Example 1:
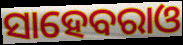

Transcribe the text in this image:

ସାହେବରାଓ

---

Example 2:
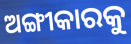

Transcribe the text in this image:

ଅଙ୍ଗୀକାରକୁ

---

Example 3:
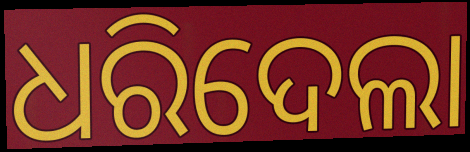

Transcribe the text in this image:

ଧରିଦେଲା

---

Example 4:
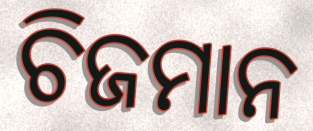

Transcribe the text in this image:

ଚିଜମାନ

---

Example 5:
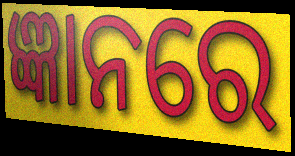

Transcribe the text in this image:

ଜ୍ଞାନରେ